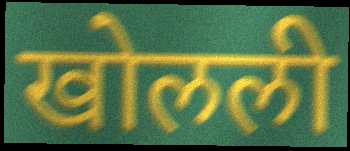
खोलली